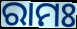
ରାମଃ